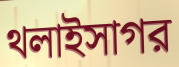
থলাইসাগর